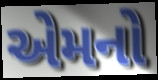
એમનો